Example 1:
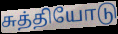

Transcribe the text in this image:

சுத்தியோடு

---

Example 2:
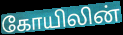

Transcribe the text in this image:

கோயிலின்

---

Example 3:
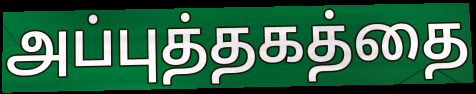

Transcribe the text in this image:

அப்புத்தகத்தை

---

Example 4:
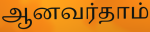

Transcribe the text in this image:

ஆனவர்தாம்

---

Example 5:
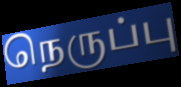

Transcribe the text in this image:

நெருப்பு